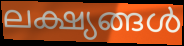
ലക്ഷ്യങ്ങൾ